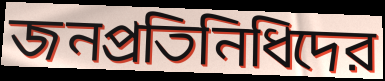
জনপ্রতিনিধিদের